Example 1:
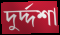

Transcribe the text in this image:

দুর্দ্দশা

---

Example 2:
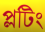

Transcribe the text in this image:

প্লটিং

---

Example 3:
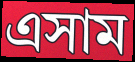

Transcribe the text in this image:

এসাম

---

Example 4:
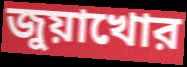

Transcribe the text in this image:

জুয়াখোর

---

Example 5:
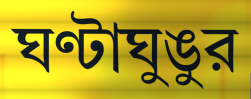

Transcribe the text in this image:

ঘণ্টাঘুঙুর